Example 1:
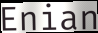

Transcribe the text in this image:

Enian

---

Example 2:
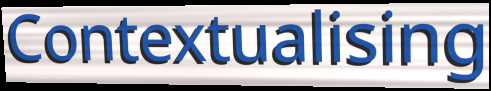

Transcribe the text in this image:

Contextualising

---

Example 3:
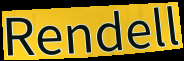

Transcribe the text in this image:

Rendell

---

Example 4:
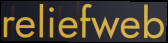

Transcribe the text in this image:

reliefweb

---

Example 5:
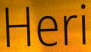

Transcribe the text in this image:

Heri